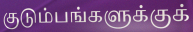
குடும்பங்களுக்குக்